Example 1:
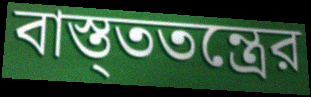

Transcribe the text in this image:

বাস্ত্ততন্ত্রের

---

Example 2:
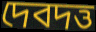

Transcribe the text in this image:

দেবদত্ত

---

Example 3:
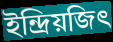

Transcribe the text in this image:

ইন্দ্রিয়জিৎ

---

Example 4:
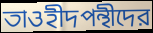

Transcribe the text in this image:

তাওহীদপন্থীদের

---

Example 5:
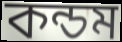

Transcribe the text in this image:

কন্ডম